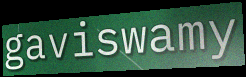
gaviswamy